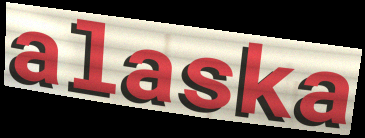
alaska